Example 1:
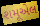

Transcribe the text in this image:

શમૂએલ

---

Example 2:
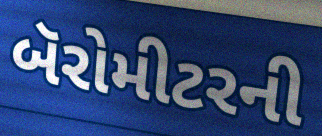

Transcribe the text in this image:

બૅરોમીટરની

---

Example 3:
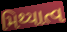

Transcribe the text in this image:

મિથ્યાત્વ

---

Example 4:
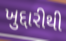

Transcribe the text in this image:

ખુદ્દારીથી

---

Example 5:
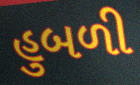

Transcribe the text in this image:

હુબળી